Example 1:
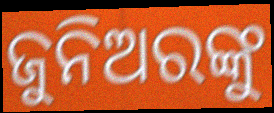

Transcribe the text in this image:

ଜୁନିଅରଙ୍କୁ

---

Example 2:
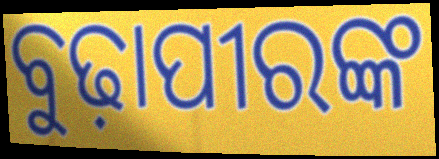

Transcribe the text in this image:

ବୁଢ଼ାପୀରଙ୍କ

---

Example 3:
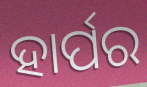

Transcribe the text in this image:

ହାର୍ପର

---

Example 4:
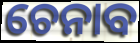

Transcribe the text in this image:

ଚେନାବ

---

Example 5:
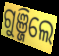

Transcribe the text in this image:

ଗୁଞ୍ଜିଲେ